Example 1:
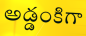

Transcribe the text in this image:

అడ్డంకిగా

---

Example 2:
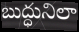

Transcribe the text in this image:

బుద్ధునిలా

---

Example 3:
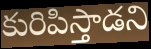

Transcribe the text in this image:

కురిపిస్తాడని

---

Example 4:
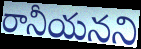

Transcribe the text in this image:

రానీయనని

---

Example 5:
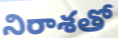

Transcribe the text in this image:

నిరాశతో